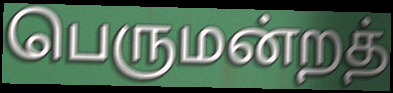
பெருமன்றத்